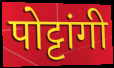
पोट्टांगी